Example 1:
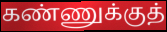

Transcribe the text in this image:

கண்ணுக்குத்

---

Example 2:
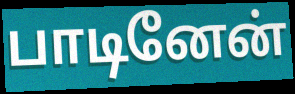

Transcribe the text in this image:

பாடினேன்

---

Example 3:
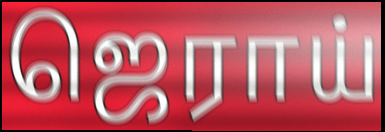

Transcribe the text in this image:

ஜெராய்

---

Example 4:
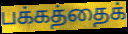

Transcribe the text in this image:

பக்கத்தைக்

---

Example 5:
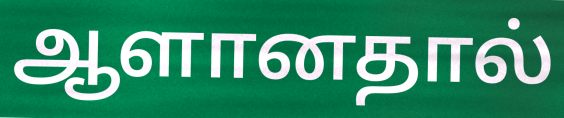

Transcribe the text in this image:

ஆளானதால்